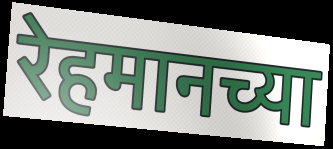
रेहमानच्या